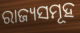
ରାଜ୍ୟସମୂହ